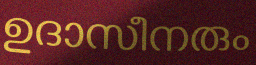
ഉദാസീനരും